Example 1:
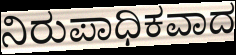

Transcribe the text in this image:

ನಿರುಪಾಧಿಕವಾದ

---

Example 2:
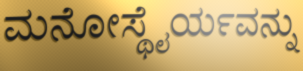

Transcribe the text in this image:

ಮನೋಸ್ಥೈರ್ಯವನ್ನು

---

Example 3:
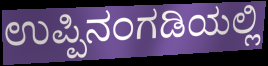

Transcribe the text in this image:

ಉಪ್ಪಿನಂಗಡಿಯಲ್ಲಿ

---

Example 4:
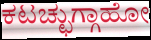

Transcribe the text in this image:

ಕಟಚ್ಛುಗ್ಗಾಹೋ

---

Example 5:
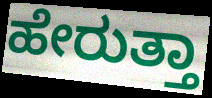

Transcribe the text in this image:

ಹೇರುತ್ತಾ